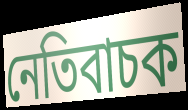
নেতিবাচক